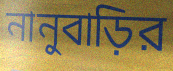
নানুবাড়ির